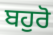
ਬਹੁਰੋ